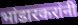
भांडारकरांनी